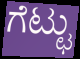
ಗೆಟ್ಟು